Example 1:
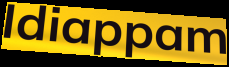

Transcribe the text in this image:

Idiappam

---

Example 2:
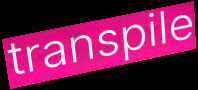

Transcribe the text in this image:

transpile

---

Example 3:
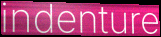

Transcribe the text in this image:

indenture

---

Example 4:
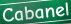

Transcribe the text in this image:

Cabanel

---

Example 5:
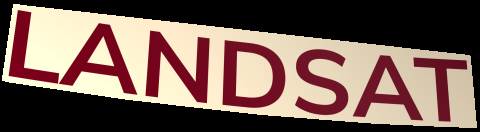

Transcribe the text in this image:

LANDSAT